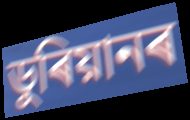
ডুৰিয়ানৰ